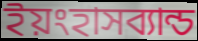
ইয়ংহাসব্যান্ড